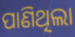
ପାଣିଥିଲା